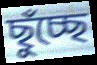
ছুঁচ্ছে